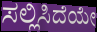
ಸಲ್ಲಿಸಿದೆಯೇ